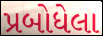
પ્રબોધેલા